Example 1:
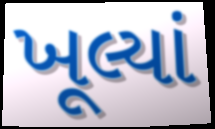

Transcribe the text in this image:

ખૂલ્યાં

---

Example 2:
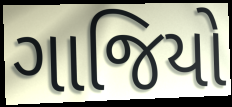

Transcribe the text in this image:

ગાજિયો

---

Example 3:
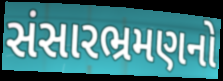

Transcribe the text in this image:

સંસારભ્રમણનો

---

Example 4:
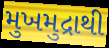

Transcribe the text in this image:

મુખમુદ્રાથી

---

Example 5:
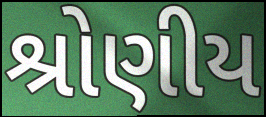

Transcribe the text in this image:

શ્રોણીય